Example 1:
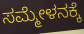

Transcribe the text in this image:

ಸಮ್ಮೇಳನಕ್ಕೆ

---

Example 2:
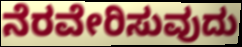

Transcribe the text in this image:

ನೆರವೇರಿಸುವುದು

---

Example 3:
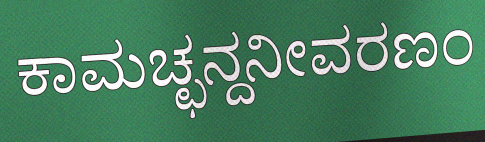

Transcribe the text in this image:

ಕಾಮಚ್ಛನ್ದನೀವರಣಂ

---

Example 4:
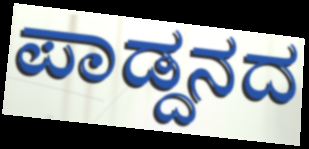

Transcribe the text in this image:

ಪಾಡ್ದನದ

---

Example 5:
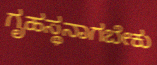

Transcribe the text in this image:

ಗೃಹಸ್ಥನಾಗಬೇಕು